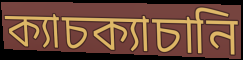
ক্যাচক্যাচানি